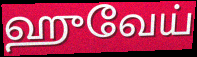
ஹுவேய்